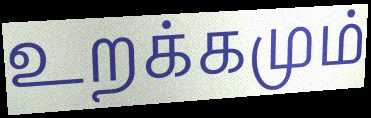
உறக்கமும்